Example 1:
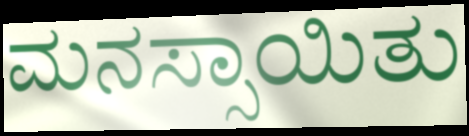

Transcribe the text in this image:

ಮನಸ್ಸಾಯಿತು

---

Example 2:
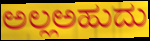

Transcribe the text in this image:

ಅಲ್ಲಅಹುದು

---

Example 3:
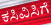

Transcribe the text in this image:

ಕಸಿವಿಸಿಗೆ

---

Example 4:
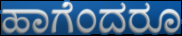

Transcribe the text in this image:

ಹಾಗೆಂದರೂ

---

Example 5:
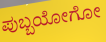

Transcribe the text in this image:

ಪುಬ್ಬಯೋಗೋ